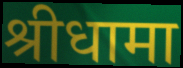
श्रीधामा